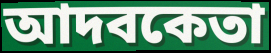
আদবকেতা